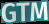
GTM